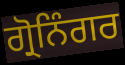
ਗ੍ਰੋਨਿੰਗਰ